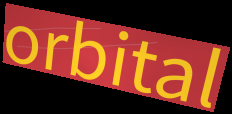
orbital